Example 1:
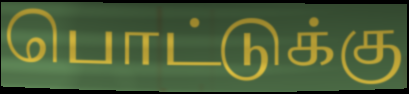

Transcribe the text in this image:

பொட்டுக்கு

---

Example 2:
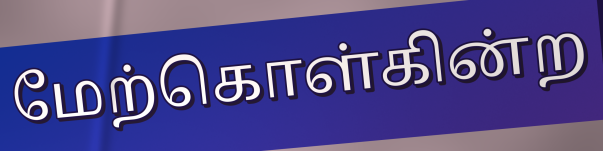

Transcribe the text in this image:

மேற்கொள்கின்ற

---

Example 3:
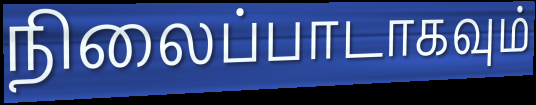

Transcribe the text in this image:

நிலைப்பாடாகவும்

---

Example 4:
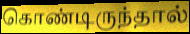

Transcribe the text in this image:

கொண்டிருந்தால்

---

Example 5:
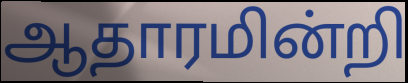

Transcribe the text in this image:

ஆதாரமின்றி